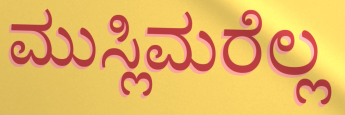
ಮುಸ್ಲಿಮರೆಲ್ಲ